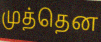
முத்தென